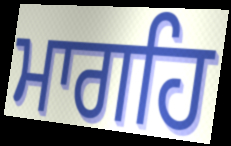
ਮਾਗਹਿ